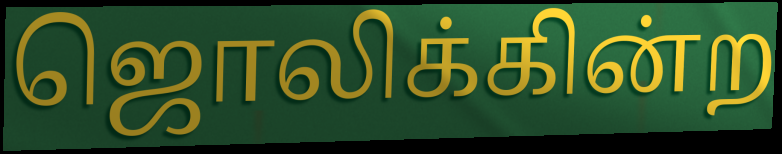
ஜொலிக்கின்ற